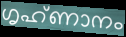
ഗൃഹ്ണാനം